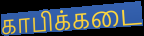
காபிக்கடை